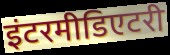
इंटरमीडिएटरी